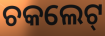
ଚକଲେଟ୍